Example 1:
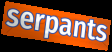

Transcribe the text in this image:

serpants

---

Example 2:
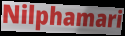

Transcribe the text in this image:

Nilphamari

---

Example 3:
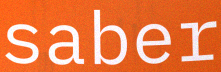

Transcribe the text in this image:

saber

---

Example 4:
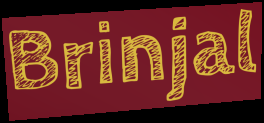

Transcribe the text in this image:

Brinjal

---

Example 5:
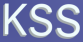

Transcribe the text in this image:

KSS